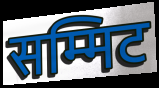
सम्मिट